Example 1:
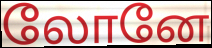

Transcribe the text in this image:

லோனே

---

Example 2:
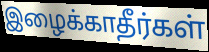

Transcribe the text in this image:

இழைக்காதீர்கள்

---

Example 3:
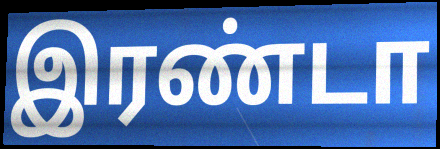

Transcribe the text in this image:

இரண்டா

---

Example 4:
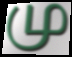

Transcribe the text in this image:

மு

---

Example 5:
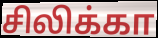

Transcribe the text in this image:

சிலிக்கா